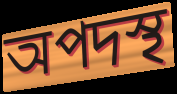
অপদস্থ